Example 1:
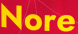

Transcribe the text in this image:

Nore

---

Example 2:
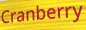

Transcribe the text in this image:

Cranberry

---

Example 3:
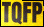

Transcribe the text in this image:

TQFP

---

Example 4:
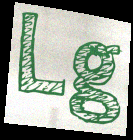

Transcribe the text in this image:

Lg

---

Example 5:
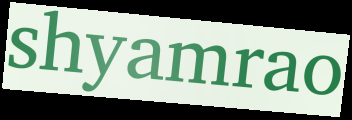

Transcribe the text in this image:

shyamrao